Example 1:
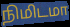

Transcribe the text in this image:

நிமிடமா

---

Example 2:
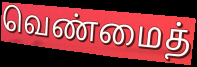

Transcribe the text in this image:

வெண்மைத்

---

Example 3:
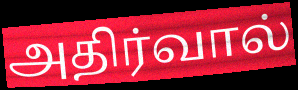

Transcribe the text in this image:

அதிர்வால்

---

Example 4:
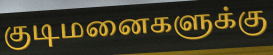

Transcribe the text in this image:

குடிமனைகளுக்கு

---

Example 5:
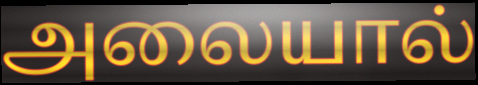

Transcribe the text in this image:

அலையால்